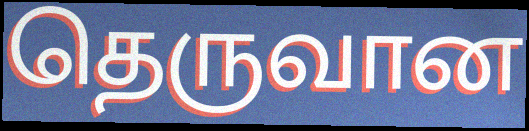
தெருவான